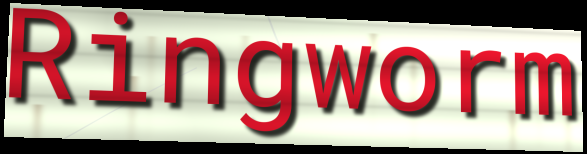
Ringworm